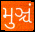
મુઞ્ચં